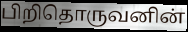
பிறிதொருவனின்